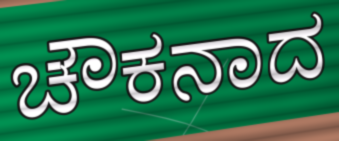
ಚೌಕನಾದ